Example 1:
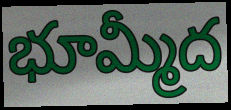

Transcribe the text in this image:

భూమ్మీద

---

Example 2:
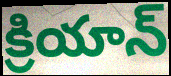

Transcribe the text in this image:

క్రియాన్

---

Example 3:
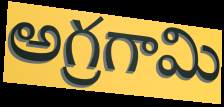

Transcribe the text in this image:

అగ్రగామి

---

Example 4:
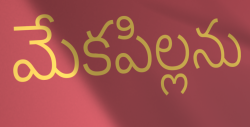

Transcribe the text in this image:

మేకపిల్లను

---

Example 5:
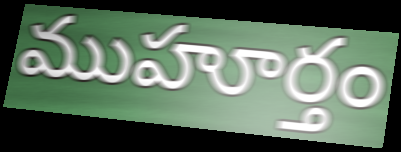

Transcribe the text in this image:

ముహూర్తం